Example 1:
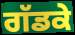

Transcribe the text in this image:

ਗੱਡਕੇ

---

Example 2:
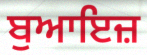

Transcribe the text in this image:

ਬੁਆਇਜ਼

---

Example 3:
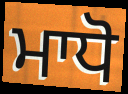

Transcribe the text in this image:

ਮਾਧੋ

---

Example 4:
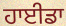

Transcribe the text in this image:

ਹਾਈਡਾ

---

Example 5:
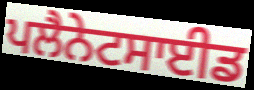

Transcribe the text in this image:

ਪਲੈਨੇਟਸਾਈਡ